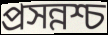
প্রসন্নশ্চ